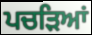
ਪਚੜਿਆਂ